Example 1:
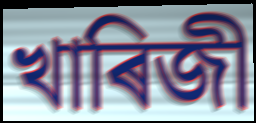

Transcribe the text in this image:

খাৰিজী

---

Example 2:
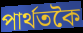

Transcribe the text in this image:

পাৰ্থতকৈ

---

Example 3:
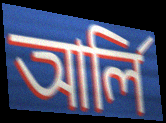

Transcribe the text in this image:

আৰ্লি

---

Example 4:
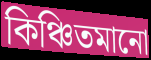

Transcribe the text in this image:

কিঞ্চিতমানো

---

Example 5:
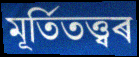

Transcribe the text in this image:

মূৰ্তিতত্ত্বৰ